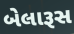
બેલારૂસ